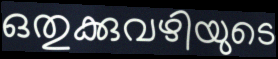
ഒതുക്കുവഴിയുടെ